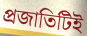
প্রজাতিটিই